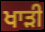
ਖਾਡ਼ੀ